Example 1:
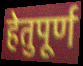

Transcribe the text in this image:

हेतुपूर्ण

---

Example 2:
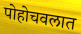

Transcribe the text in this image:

पोहोचवलात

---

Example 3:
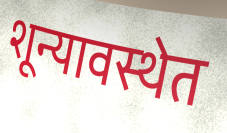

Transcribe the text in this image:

शून्यावस्थेत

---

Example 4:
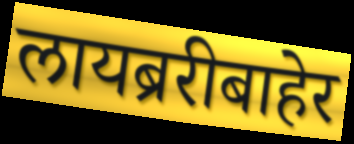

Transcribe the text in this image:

लायब्ररीबाहेर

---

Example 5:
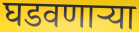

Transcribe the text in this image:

घडवणार्‍या